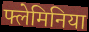
फ्लेमिनिया